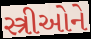
સ્ત્રીઓને